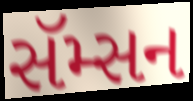
સૅમ્સન